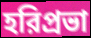
হরিপ্রভা